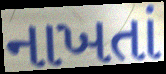
નાખતાં